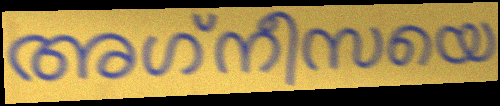
അഗ്‌നീസയെ